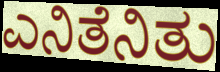
ಎನಿತೆನಿತು